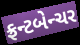
ફ્રન્ટબેન્ચર